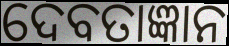
ଦେବତାଜ୍ଞାନ